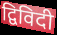
द्विविदी